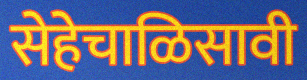
सेहेचाळिसावी